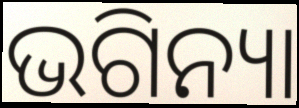
ଭଗିନ୍ୟା